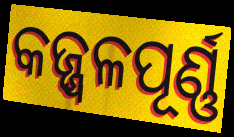
କଜ୍ଜ୍ୱଳପୂର୍ଣ୍ଣ